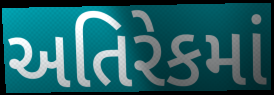
અતિરેકમાં